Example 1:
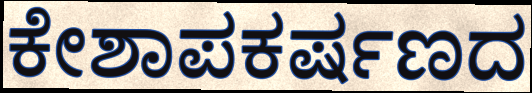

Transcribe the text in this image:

ಕೇಶಾಪಕರ್ಷಣದ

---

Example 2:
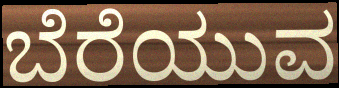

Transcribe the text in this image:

ಬೆರೆಯುವ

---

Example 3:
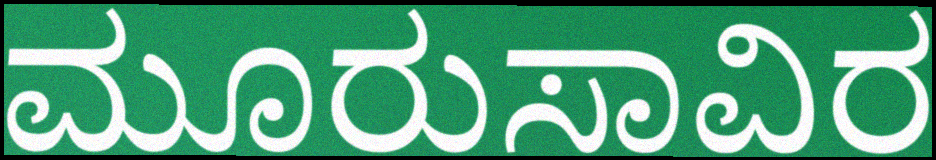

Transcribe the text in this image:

ಮೂರುಸಾವಿರ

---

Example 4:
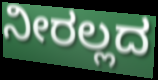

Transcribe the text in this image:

ನೀರಲ್ಲದ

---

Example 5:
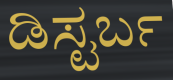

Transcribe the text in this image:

ಡಿಸ್ಟರ್ಬ